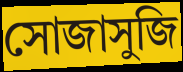
সোজাসুজি